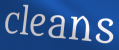
cleans